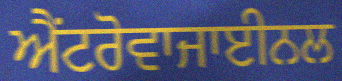
ਐਂਟਰੋਵਾਜਾਈਨਲ